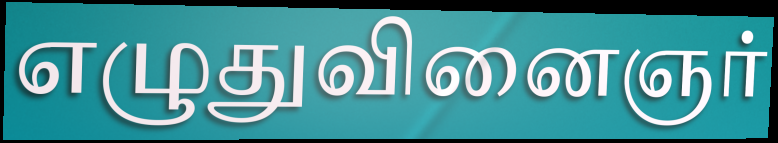
எழுதுவினைஞர்